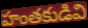
హంతకుడివి